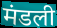
मंडली